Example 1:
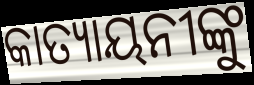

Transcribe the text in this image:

କାତ୍ୟାୟନୀଙ୍କୁ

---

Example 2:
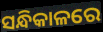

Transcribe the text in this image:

ସନ୍ଧିକାଳରେ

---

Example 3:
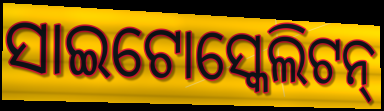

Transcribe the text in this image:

ସାଇଟୋସ୍କେଲିଟନ୍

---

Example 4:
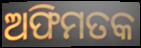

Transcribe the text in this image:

ଅଫିମତକ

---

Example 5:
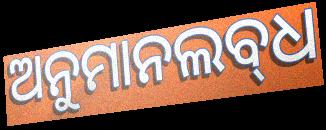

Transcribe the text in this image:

ଅନୁମାନଲବ୍‌ଧ